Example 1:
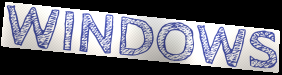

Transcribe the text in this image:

WINDOWS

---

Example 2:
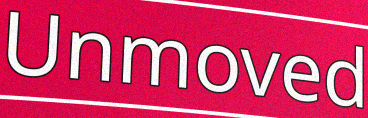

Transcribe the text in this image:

Unmoved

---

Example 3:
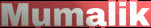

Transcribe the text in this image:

Mumalik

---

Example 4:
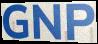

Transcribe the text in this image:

GNP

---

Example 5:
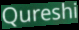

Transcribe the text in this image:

Qureshi